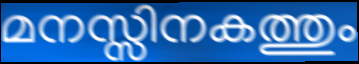
മനസ്സിനകത്തും